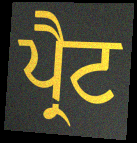
ਪ੍ਰੈਟ